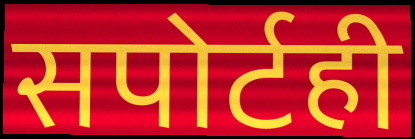
सपोर्टही